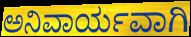
ಅನಿವಾರ್ಯವಾಗಿ